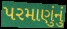
પરમાણુંનું